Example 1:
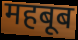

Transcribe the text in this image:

महबूब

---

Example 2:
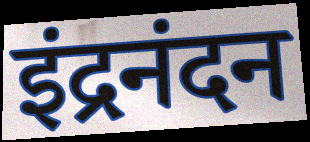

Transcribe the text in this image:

इंद्रनंदन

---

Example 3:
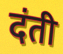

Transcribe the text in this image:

दंती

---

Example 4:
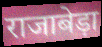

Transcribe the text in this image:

राजाबेड़ा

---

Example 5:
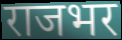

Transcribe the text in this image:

राजभर